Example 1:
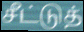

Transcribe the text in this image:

சீட்டுத்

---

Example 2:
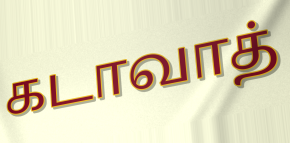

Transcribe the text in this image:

கடாவாத்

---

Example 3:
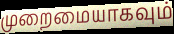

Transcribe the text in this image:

முறைமையாகவும்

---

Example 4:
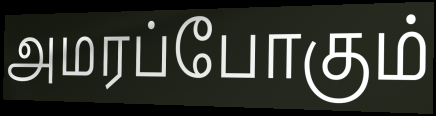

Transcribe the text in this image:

அமரப்போகும்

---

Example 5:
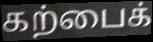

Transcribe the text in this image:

கற்பைக்